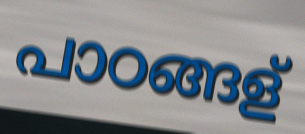
പാഠങ്ങള്